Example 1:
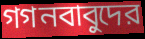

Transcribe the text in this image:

গগনবাবুদের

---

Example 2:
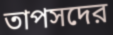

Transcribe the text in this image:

তাপসদের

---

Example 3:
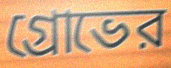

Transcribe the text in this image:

গ্রোভের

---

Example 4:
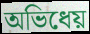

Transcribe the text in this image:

অভিধেয়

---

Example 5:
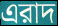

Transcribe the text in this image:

এরাদ